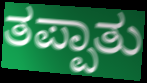
ತಪ್ಪಾತು